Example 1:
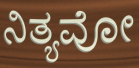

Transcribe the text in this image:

ನಿತ್ಯವೋ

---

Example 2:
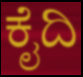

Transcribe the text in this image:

ಕೈದಿ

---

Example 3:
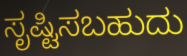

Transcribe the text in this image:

ಸೃಷ್ಟಿಸಬಹುದು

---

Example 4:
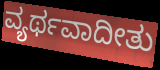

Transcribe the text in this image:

ವ್ಯರ್ಥವಾದೀತು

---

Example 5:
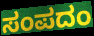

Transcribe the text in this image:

ಸಂಪದಂ